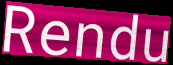
Rendu